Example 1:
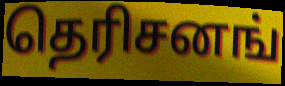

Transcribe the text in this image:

தெரிசனங்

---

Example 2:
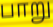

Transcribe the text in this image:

பாறு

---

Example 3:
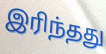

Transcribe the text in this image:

இரிந்தது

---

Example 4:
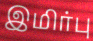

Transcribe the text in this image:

இமிர்பு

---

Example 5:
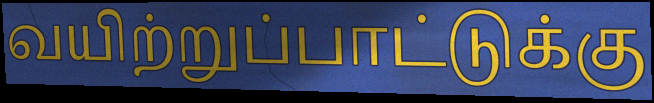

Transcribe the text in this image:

வயிற்றுப்பாட்டுக்கு